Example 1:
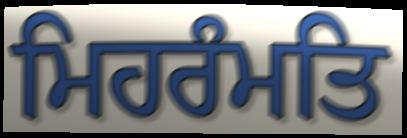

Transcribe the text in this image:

ਮਿਹਰੰਮਤਿ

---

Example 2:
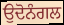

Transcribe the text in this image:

ਉਦੋਨੰਗਲ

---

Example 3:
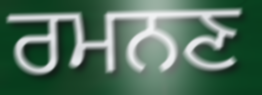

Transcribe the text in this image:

ਰਮਨਣ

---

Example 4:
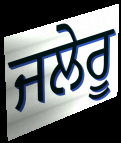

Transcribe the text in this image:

ਜਲੇਰੂ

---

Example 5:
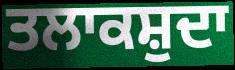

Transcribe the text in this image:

ਤਲਾਕਸ਼ੁਦਾ